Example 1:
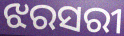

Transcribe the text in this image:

ଝରସରୀ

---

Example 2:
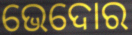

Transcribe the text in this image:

ଭେଦୋର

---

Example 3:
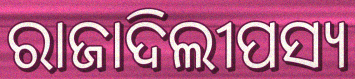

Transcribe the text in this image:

ରାଜାଦିଲୀପସ୍ୟ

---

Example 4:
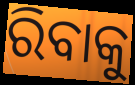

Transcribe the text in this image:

ରିବାକୁ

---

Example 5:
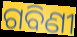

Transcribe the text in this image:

ଗବିଣୀ